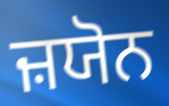
ਜ਼ਯੋਨ